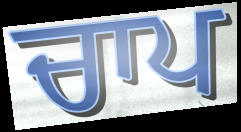
ਚਾਪ